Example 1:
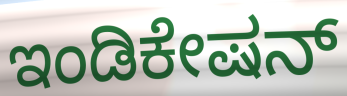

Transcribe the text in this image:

ಇಂಡಿಕೇಷನ್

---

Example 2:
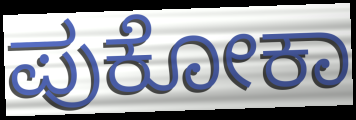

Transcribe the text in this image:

ಪುಕೋಕಾ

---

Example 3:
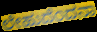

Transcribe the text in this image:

ಲೇಹುದೆಂದನಾ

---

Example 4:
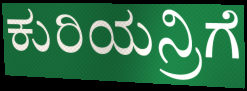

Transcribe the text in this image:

ಕುರಿಯನ್ರಿಗೆ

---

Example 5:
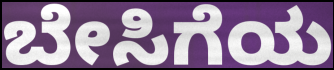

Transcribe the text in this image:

ಬೇಸಿಗೆಯ